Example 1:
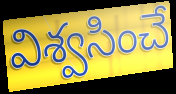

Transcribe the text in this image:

విశ్వసించే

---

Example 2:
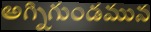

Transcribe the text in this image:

అగ్నిగుండమున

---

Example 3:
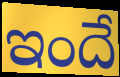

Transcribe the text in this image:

ఇందే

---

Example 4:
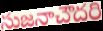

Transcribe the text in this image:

సుజనాచౌదరి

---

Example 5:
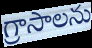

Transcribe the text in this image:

గ్రాసాలను